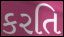
કરતિ